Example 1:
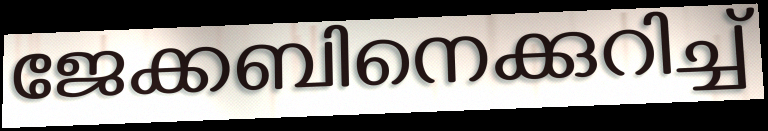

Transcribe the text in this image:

ജേക്കബിനെക്കുറിച്ച്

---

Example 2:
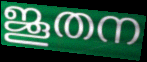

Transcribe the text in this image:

ജൂതന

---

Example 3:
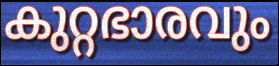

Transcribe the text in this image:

കുറ്റഭാരവും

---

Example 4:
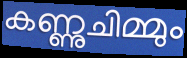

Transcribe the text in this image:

കണ്ണുചിമ്മും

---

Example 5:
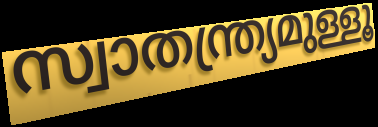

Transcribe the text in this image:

സ്വാതന്ത്ര്യമുള്ളൂ